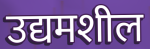
उद्यमशील